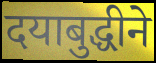
दयाबुद्धीने